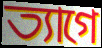
ত্যাগে